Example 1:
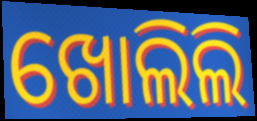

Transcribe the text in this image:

ଖୋଲିଲି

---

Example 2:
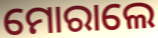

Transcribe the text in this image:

ମୋରାଲେ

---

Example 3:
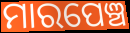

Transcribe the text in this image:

ମାରପେଞ୍ଚ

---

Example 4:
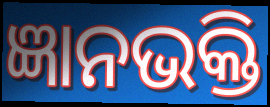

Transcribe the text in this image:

ଜ୍ଞାନଭକ୍ତି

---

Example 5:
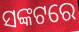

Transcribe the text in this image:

ସଙ୍କଟରେ